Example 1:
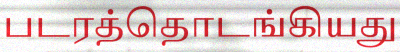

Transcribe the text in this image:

படரத்தொடங்கியது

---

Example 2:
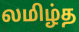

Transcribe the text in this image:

லமிழ்த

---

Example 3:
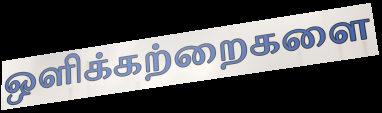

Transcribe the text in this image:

ஒளிக்கற்றைகளை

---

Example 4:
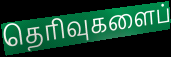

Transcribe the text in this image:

தெரிவுகளைப்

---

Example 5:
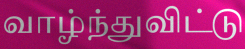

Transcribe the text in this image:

வாழ்ந்துவிட்டு